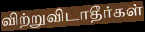
விற்றுவிடாதீர்கள்